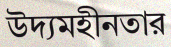
উদ্যমহীনতার